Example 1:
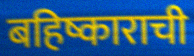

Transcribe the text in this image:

बहिष्काराची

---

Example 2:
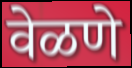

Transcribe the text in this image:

वेळणे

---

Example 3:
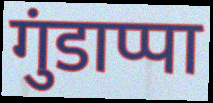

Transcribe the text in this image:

गुंडाप्पा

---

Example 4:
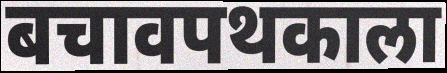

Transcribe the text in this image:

बचावपथकाला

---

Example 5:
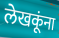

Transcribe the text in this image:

लेखकूंना